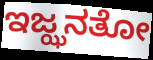
ಇಜ್ಝನತೋ